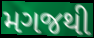
મગજથી